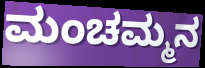
ಮಂಚಮ್ಮನ